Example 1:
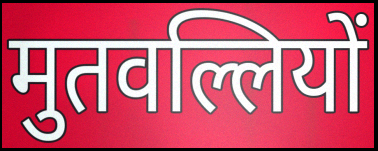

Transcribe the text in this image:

मुतवल्लियों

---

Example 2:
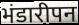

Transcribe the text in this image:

भंडारीपन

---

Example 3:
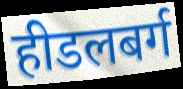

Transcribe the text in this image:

हीडलबर्ग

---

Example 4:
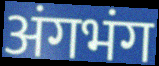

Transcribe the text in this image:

अंगभंग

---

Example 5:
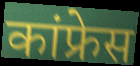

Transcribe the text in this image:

कांफ्रेस